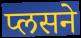
प्लसने